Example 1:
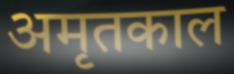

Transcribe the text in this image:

अमृतकाल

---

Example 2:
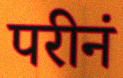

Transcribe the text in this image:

परीनं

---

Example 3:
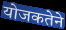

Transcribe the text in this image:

योजकतेने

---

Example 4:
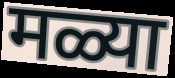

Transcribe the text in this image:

मळ्या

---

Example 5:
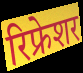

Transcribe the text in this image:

रिफ्रेशर